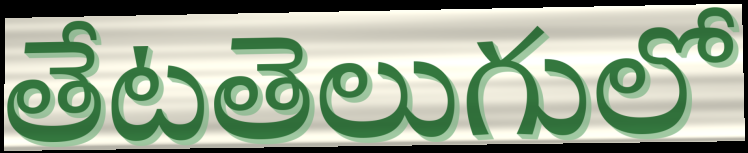
తేటతెలుగులో